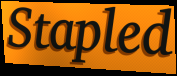
Stapled